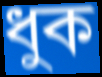
ধুক